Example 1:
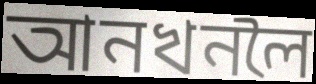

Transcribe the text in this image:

আনখনলৈ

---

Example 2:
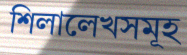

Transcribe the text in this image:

শিলালেখসমূহ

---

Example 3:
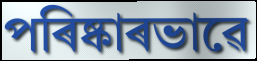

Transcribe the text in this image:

পৰিষ্কাৰভাৱে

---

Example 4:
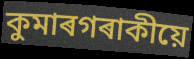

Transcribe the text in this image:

কুমাৰগৰাকীয়ে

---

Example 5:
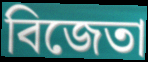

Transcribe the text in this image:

বিজেতা